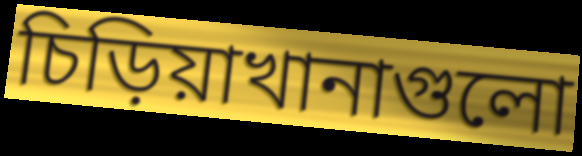
চিড়িয়াখানাগুলো